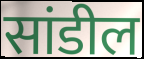
सांडील